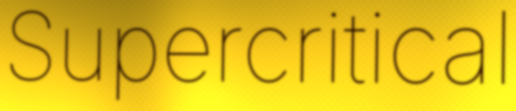
Supercritical